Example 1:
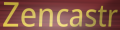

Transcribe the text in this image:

Zencastr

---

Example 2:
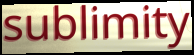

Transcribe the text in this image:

sublimity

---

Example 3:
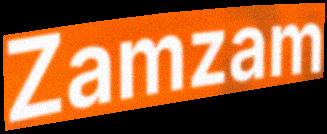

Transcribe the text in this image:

Zamzam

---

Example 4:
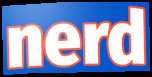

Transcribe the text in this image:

nerd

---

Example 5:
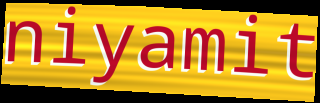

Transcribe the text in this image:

niyamit